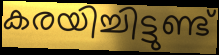
കരയിച്ചിട്ടുണ്ട്